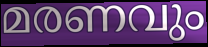
മരണവും